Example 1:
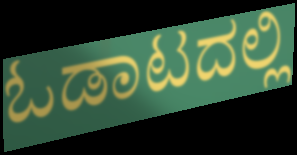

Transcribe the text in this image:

ಓಡಾಟದಲ್ಲಿ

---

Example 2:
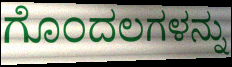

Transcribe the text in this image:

ಗೊಂದಲಗಳನ್ನು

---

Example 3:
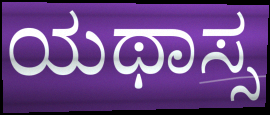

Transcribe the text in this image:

ಯಥಾಸ್ಸ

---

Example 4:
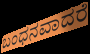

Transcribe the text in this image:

ಬಂಧನವಾದರೆ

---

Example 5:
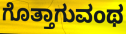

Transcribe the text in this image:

ಗೊತ್ತಾಗುವಂಥ